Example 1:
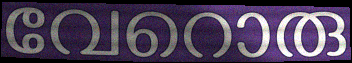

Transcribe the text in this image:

വേറൊരു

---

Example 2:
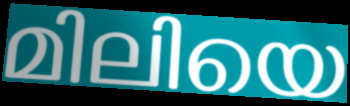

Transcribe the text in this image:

മിലിയെ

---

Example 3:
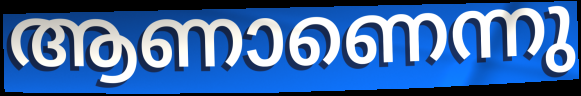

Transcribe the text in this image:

ആണാണെന്നു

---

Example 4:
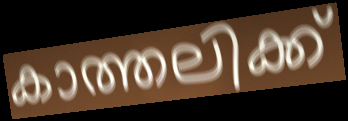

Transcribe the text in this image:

കാത്തലിക്ക്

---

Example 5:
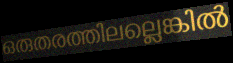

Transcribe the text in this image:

ഒരുതരത്തിലല്ലെങ്കിൽ